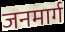
जनमार्ग